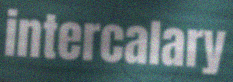
intercalary